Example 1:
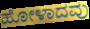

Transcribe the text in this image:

ಹೋಳಾದವು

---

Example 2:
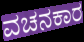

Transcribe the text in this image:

ವಚನಕಾರ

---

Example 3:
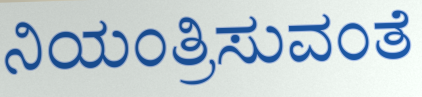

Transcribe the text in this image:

ನಿಯಂತ್ರಿಸುವಂತೆ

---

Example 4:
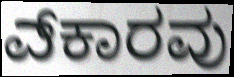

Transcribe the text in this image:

ಎ್‍ಕಾರವು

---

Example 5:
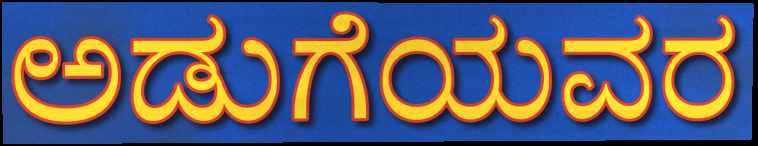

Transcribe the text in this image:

ಅಡುಗೆಯವರ